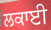
ਲਕਾਈ